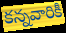
కన్నవారికీ